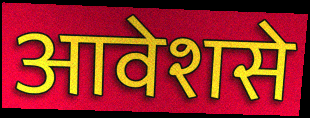
आवेशसे